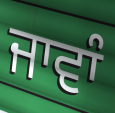
ਜਾਵਾੰ